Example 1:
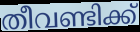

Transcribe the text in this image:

തീവണ്ടിക്ക്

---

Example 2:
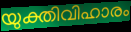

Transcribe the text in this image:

യുക്തിവിഹാരം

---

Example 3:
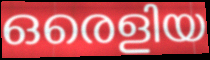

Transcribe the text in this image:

ഒരെളിയ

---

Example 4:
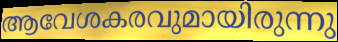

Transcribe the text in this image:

ആവേശകരവുമായിരുന്നു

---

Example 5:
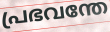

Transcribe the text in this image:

പ്രഭവന്തേ